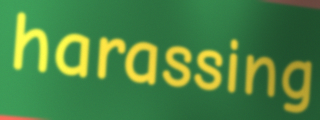
harassing